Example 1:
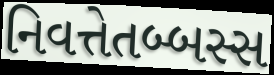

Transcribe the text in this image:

નિવત્તેતબ્બસ્સ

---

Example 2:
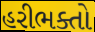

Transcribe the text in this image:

હરીભક્તો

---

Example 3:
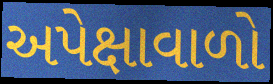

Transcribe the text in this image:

અપેક્ષાવાળો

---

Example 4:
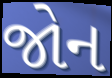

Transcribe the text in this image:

જોન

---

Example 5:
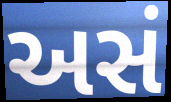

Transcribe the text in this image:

અસં